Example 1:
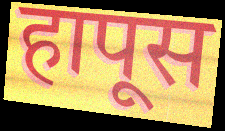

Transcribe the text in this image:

हापूस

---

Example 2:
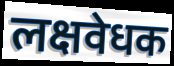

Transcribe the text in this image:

लक्षवेधक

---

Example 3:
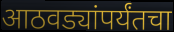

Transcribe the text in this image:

आठवड्यांपर्यंतचा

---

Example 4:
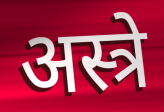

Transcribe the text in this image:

अस्त्रे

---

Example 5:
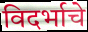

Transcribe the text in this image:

विदर्भाचे